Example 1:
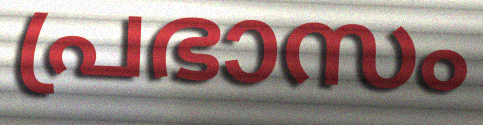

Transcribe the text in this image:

പ്രഭാസം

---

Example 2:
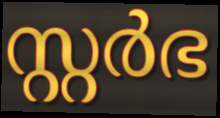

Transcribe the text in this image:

സ്റ്റർഭ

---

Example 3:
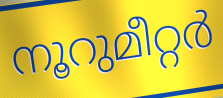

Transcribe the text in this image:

നൂറുമീറ്റർ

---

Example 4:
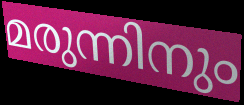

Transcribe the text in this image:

മരുന്നിനും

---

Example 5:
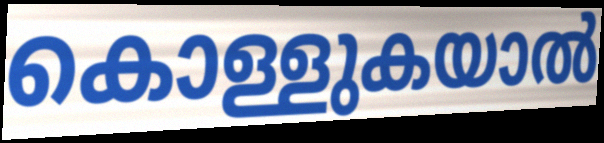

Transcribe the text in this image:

കൊള്ളുകയാൽ